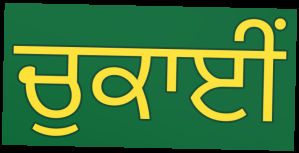
ਚੁਕਾਈਂ